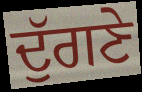
ਦੁੱਗਣੇ